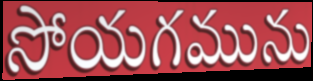
సోయగమును